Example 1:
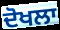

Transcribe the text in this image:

ਦੋਖਲਾ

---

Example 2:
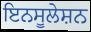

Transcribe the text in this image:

ਇਨਸੂਲੇਸ਼ਨ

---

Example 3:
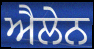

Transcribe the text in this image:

ਐਲੇਨ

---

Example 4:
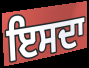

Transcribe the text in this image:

ਇਸਦਾ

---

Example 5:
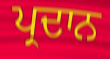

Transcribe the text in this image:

ਪ੍ਰਦਾਨ